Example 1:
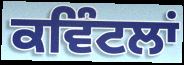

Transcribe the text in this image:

ਕਵਿੰਟਲਾਂ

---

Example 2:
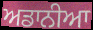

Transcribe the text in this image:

ਅਡਾਨੀਆ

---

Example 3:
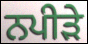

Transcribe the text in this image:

ਨਪੀੜੇ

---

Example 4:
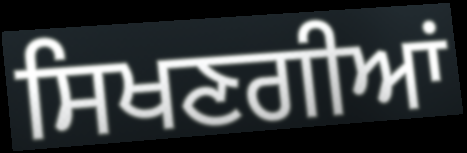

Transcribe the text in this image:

ਸਿਖਣਗੀਆਂ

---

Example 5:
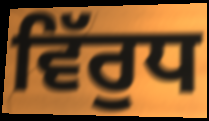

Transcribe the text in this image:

ਵਿੱਰੁਧ